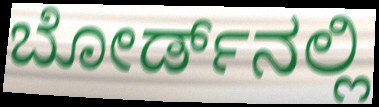
ಬೋರ್ಡ್‌ನಲ್ಲಿ